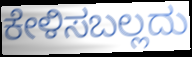
ಕೇಳಿಸಬಲ್ಲದು